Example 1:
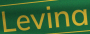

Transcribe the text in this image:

Levina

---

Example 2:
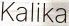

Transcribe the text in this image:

Kalika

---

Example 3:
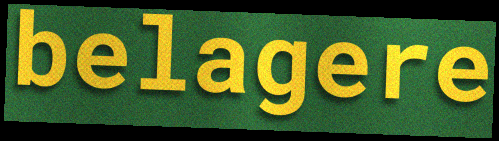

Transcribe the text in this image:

belagere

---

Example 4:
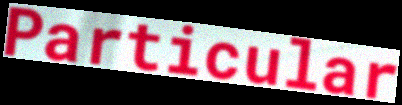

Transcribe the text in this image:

Particular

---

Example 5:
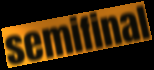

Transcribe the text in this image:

semifinal